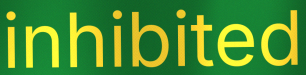
inhibited